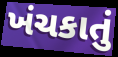
ખંચકાતું